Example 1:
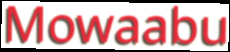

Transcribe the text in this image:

Mowaabu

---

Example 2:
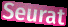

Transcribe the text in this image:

Seurat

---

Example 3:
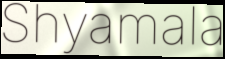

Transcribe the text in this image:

Shyamala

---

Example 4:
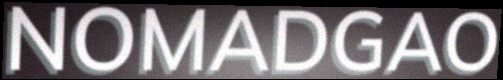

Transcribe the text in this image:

NOMADGAO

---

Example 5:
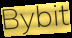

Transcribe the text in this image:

Bybit